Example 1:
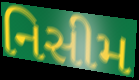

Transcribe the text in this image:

નિસીમ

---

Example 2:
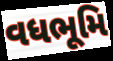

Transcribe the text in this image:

વધભૂમિ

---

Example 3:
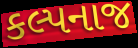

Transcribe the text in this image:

કલ્પનાજ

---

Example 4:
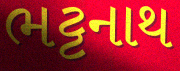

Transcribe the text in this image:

ભટ્ટનાથ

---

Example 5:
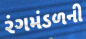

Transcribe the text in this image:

રંગમંડળની